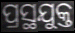
ପ୍ରସ୍ଥଯୁକ୍ତ